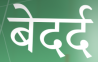
बेदर्द